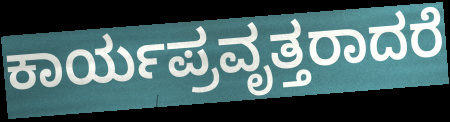
ಕಾರ್ಯಪ್ರವೃತ್ತರಾದರೆ